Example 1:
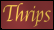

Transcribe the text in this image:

Thrips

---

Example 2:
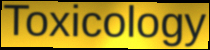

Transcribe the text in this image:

Toxicology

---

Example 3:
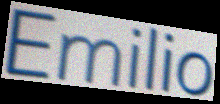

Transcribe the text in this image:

Emilio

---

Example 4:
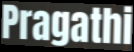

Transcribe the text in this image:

Pragathi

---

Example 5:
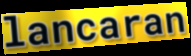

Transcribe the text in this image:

lancaran